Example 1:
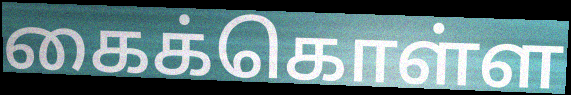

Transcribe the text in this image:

கைக்கொள்ள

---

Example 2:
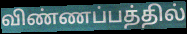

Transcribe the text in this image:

விண்ணப்பத்தில்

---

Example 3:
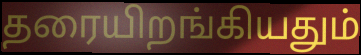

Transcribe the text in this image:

தரையிறங்கியதும்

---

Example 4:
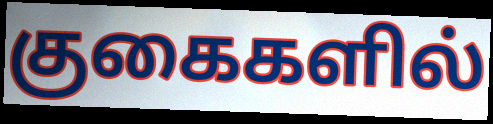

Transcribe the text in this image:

குகைகளில்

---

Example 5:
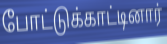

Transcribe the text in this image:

போட்டுக்காட்டினார்